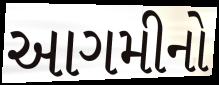
આગમીનો